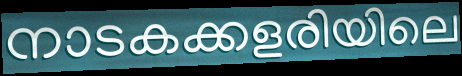
നാടകക്കളരിയിലെ